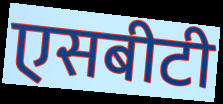
एसबीटी